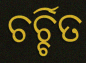
ଚର୍ଚ୍ଚିତ